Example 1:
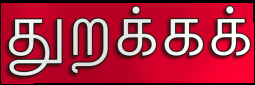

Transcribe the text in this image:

துறக்கக்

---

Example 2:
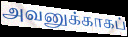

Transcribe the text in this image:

அவனுக்காகப்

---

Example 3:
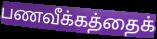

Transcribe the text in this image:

பணவீக்கத்தைக்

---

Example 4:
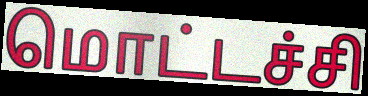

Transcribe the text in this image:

மொட்டச்சி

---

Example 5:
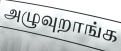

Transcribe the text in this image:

அழுவுறாங்க